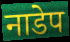
नाडेप